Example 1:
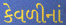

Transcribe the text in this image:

કેવળીનાં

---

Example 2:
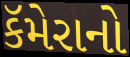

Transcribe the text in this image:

કૅમેરાનો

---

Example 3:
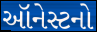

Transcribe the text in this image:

ઑનેસ્ટનો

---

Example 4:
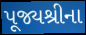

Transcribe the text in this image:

પૂજ્યશ્રીના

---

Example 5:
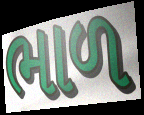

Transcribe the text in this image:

ભાળ